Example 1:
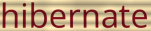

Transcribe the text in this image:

hibernate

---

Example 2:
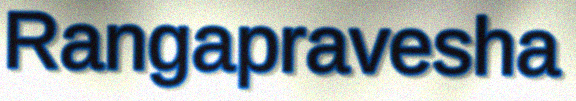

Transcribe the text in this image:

Rangapravesha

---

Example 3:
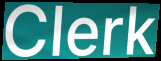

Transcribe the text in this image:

Clerk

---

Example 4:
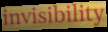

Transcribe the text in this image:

invisibility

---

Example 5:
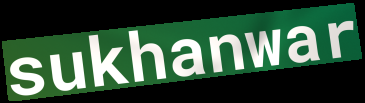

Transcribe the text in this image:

sukhanwar